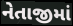
નેતાજીમાં